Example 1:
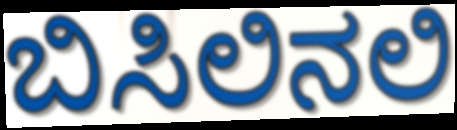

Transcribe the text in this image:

ಬಿಸಿಲಿನಲಿ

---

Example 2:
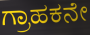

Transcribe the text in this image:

ಗ್ರಾಹಕನೇ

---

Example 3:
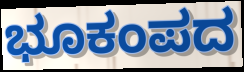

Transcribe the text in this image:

ಭೂಕಂಪದ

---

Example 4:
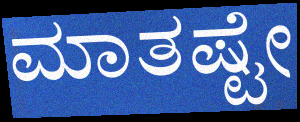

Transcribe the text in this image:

ಮಾತಷ್ಟೇ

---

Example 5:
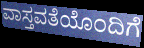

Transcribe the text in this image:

ವಾಸ್ತವತೆಯೊಂದಿಗೆ